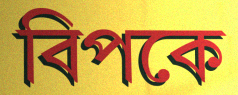
বিপকে